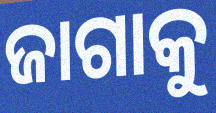
ଜାଗାକୁ